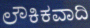
ಲೌಕಿಕವಾದಿ